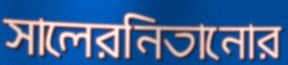
সালেরনিতানোর